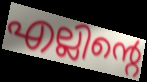
എല്ലിന്റെ